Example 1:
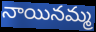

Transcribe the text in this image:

నాయినమ్మ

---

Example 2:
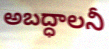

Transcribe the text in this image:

అబద్ధాలనీ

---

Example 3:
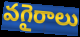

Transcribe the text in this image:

వగైరాలు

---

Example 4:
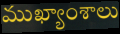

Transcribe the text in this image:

ముఖ్యాంశాలు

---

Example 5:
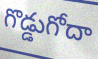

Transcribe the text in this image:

గొడ్డుగోదా